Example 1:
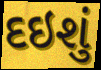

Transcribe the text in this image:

દઇશું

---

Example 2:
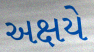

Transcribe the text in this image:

અક્ષયે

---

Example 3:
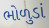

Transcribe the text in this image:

ભોળુડાં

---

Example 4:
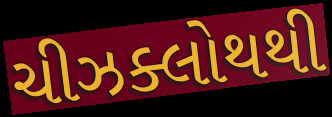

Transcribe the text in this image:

ચીઝક્લોથથી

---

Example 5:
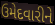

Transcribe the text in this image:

ઉમેદવારીને